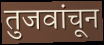
तुजवांचून